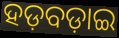
ହଡ଼ବଡ଼ାଇ